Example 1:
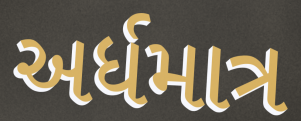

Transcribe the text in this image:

અર્ધમાત્ર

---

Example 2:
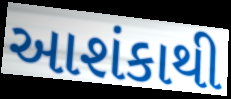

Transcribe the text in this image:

આશંકાથી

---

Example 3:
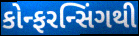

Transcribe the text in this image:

કોન્ફરન્સિંગથી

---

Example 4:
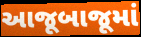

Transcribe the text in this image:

આજૂબાજૂમાં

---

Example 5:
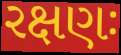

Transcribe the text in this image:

રક્ષણઃ